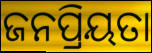
ଜନପ୍ରିୟତା